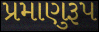
પ્રમાણુરૂપ